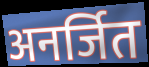
अनर्जित